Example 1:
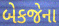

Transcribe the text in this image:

બેકજેના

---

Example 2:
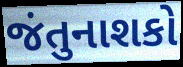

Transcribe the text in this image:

જંતુનાશકો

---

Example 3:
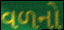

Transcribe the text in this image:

વળનો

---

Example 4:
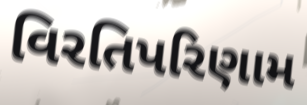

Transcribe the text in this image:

વિરતિપરિણામ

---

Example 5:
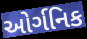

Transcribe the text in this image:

ઓર્ગનિક